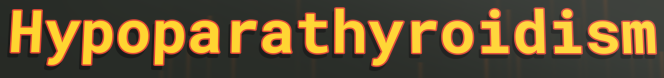
Hypoparathyroidism